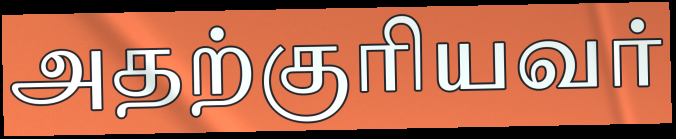
அதற்குரியவர்